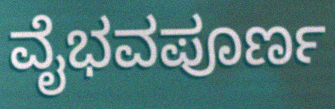
ವೈಭವಪೂರ್ಣ